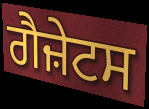
ਗੈਜ਼ੇਟਸ